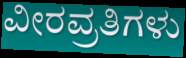
ವೀರವ್ರತಿಗಳು